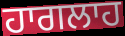
ਹਾਗਲਾਹ